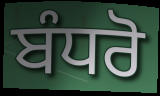
ਬੰਧਰੋ